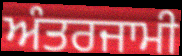
ਅੰਤਰਜਾਮੀ